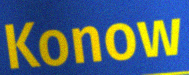
Konow